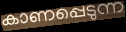
കാണപ്പെടുന്ന